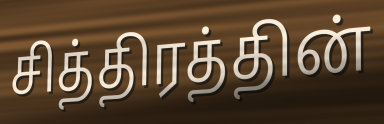
சித்திரத்தின்